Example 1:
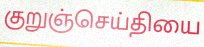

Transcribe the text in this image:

குறுஞ்செய்தியை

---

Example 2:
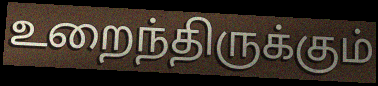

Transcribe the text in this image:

உறைந்திருக்கும்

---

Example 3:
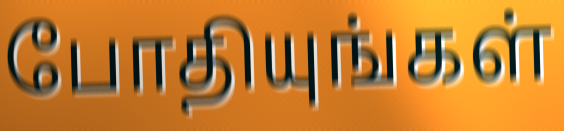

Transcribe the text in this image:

போதியுங்கள்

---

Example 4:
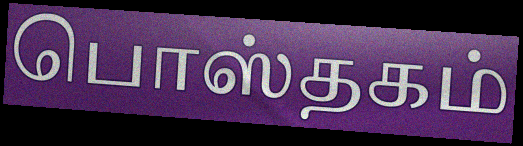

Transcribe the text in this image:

பொஸ்தகம்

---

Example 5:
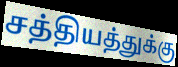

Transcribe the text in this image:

சத்தியத்துக்கு